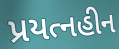
પ્રયત્નહીન